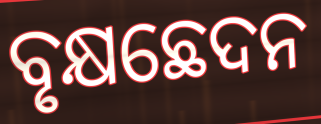
ବୃକ୍ଷଛେଦନ